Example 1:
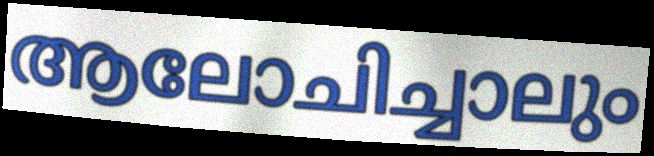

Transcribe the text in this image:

ആലോചിച്ചാലും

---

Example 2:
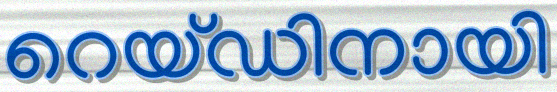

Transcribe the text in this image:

റെയ്ഡിനായി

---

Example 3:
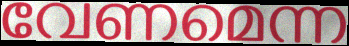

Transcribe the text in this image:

വേണമെന്ന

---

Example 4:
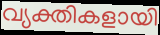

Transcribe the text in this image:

വ്യക്തികളായി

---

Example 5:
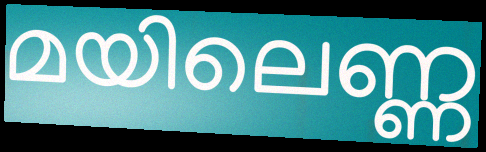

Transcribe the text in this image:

മയിലെണ്ണ